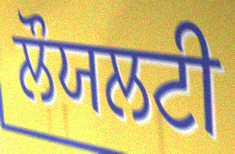
ਲੌਯਲਟੀ